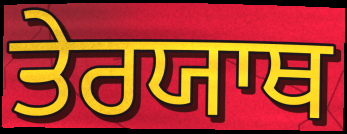
ਤੇਰਯਾਥ